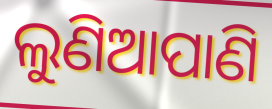
ଲୁଣିଆପାଣି